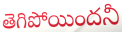
తెగిపోయిందనీ